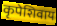
कृपेशिवाय